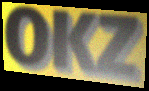
OKZ